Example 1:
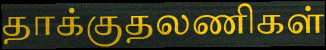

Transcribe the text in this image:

தாக்குதலணிகள்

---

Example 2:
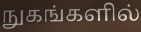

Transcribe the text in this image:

நுகங்களில்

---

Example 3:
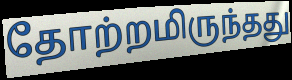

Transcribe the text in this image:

தோற்றமிருந்தது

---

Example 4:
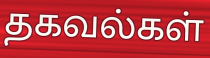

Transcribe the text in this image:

தகவல்கள்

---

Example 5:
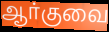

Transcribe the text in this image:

ஆர்குவை